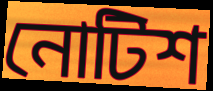
নোটিশ